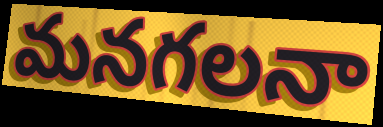
మనగలనా